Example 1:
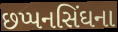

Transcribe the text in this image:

છપ્પનસિંઘના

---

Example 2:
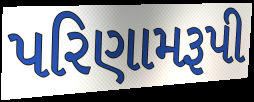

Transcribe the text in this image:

પરિણામરૂપી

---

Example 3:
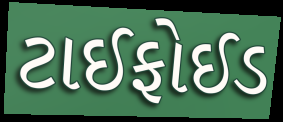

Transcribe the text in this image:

ટાઈફોઈડ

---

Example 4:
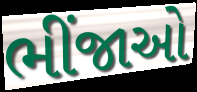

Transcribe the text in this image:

ભીંજાઓ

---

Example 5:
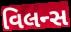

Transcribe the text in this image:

વિલન્સ